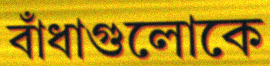
বাঁধাগুলোকে